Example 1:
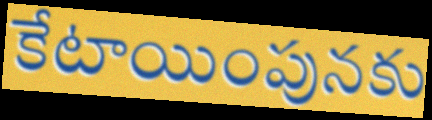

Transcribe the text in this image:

కేటాయింపునకు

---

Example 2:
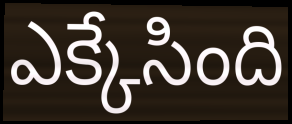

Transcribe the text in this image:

ఎక్కేసింది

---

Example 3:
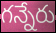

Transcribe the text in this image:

గన్నేరు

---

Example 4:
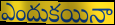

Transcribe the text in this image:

ఎందుకయినా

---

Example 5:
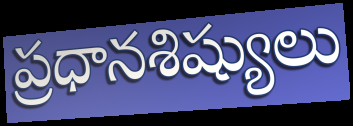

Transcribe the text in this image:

ప్రధానశిష్యులు